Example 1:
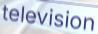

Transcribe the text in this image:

television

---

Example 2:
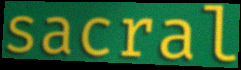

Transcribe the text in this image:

sacral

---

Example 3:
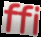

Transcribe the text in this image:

ffi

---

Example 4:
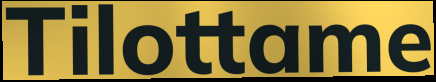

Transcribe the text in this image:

Tilottame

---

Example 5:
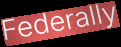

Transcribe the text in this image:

Federally